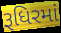
રૂધિરમાં